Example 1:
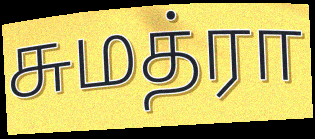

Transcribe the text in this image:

சுமத்ரா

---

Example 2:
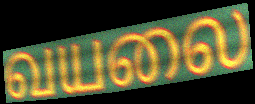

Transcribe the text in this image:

வயலை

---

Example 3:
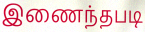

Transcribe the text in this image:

இணைந்தபடி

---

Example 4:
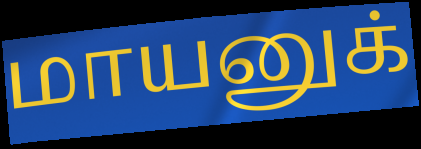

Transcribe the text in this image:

மாயனுக்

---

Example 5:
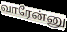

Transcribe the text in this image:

வாரேன்னு